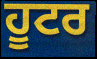
ਹੂਟਰ